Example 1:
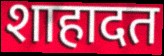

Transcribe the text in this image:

शाहादत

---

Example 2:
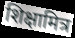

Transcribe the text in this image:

शिक्षामित्र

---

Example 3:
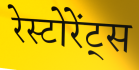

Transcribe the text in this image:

रेस्टोरेंट्स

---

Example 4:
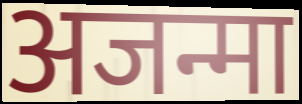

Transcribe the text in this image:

अजन्मा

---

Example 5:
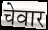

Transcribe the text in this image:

चेवार